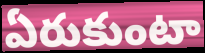
ఏరుకుంటా